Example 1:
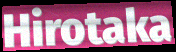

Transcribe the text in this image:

Hirotaka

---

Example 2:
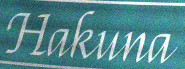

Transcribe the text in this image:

Hakuna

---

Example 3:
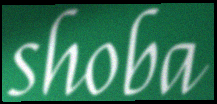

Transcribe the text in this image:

shoba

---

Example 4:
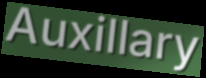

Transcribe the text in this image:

Auxillary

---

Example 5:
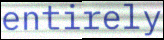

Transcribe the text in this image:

entirely